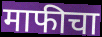
माफीचा